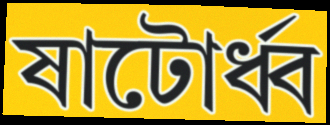
ষাটোর্ধ্ব